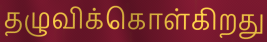
தழுவிக்கொள்கிறது